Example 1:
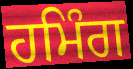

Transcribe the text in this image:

ਹਮਿੰਗ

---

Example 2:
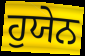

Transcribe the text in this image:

ਹੁਯੇਨ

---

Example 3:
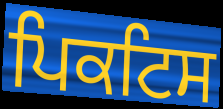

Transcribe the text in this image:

ਪਿਕਟਿਸ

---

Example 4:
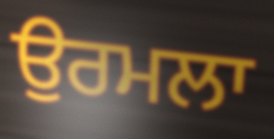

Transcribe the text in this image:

ਉਰਮਲਾ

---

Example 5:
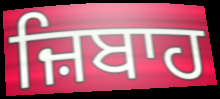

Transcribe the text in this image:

ਜ਼ਿਬਾਹ